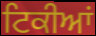
ਟਿਕੀਆਂ